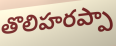
తొలిహరప్పా